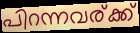
പിറന്നവര്ക്ക്